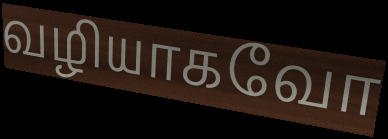
வழியாகவோ